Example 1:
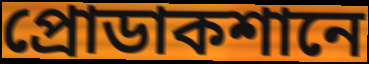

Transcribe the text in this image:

প্রোডাকশানে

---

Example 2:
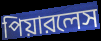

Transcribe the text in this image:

পিয়ারলেস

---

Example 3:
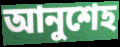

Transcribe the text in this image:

আনুশেহ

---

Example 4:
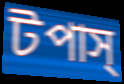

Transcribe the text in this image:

টপাস্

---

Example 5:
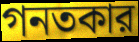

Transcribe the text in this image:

গনতকার